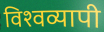
विश्वव्यापी